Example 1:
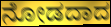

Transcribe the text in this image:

ನೋಡದಾದ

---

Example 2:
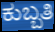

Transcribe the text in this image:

ಕುಬ್ಬತಿ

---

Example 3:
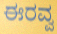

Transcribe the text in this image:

ಈರವ್ವ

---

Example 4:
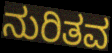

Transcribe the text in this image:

ನುರಿತವ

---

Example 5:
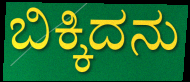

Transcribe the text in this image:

ಬಿಕ್ಕಿದನು